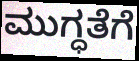
ಮುಗ್ಧತೆಗೆ